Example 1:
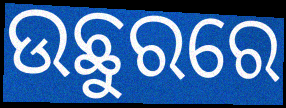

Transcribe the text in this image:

ଉଛୁରରେ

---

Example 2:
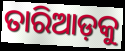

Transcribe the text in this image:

ତାରିଆଡ଼କୁ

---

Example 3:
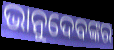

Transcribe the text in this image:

ଭାନୁଦେବଙ୍କର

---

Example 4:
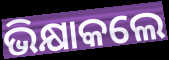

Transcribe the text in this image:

ଭିକ୍ଷାକଲେ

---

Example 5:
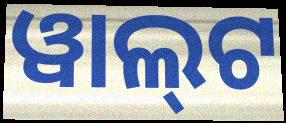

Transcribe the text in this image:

ୱାଲ୍‌ଟ